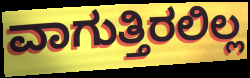
ವಾಗುತ್ತಿರಲಿಲ್ಲ